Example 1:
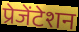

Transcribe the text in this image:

प्रेजेंटेशन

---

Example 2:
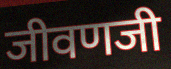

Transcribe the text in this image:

जीवणजी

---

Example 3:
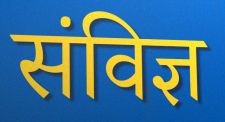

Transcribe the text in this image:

संविज्ञ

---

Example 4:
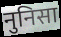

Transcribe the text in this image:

नुनिसा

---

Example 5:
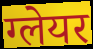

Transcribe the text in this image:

ग्लेयर